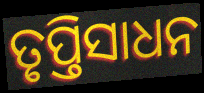
ତୃପ୍ତିସାଧନ